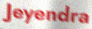
Jeyendra